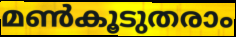
മൺകൂടുതരാം